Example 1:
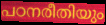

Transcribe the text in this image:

പഠനരീതിയും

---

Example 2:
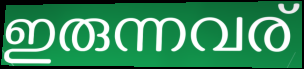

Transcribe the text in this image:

ഇരുന്നവര്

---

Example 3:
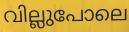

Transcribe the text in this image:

വില്ലുപോലെ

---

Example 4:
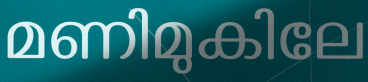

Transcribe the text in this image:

മണിമുകിലേ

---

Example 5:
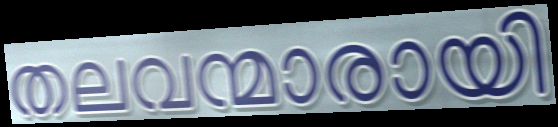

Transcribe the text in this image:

തലവന്മാരായി